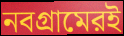
নবগ্রামেরই